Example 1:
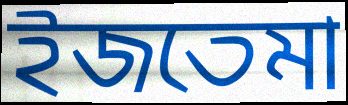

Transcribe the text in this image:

ইজতেমা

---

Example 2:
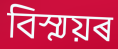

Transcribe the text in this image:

বিস্ময়ৰ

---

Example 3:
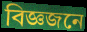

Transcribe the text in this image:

বিজ্ঞজনে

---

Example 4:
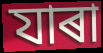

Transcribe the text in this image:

যাৰা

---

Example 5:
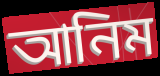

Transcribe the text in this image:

আনিম